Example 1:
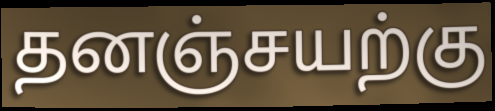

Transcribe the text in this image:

தனஞ்சயற்கு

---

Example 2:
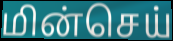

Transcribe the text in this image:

மின்செய்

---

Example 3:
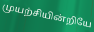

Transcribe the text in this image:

முயற்சியின்றியே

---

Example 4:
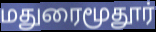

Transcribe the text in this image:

மதுரைமூதூர்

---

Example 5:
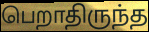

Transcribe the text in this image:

பெறாதிருந்த